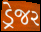
ડ્રેજર